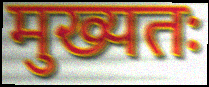
मुख्यतः